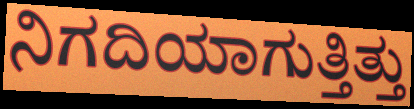
ನಿಗದಿಯಾಗುತ್ತಿತ್ತು